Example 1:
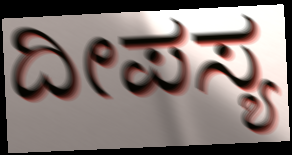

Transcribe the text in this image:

ದೀಪಸ್ಯ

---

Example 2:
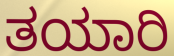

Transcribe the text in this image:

ತಯಾರಿ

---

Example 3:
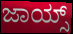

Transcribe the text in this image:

ಜಾಯ್ಸ್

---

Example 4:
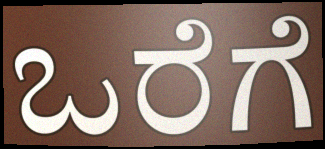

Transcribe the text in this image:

ಒರೆಗೆ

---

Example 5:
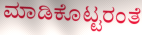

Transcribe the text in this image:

ಮಾಡಿಕೊಟ್ಟರಂತೆ